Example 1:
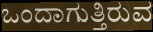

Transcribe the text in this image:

ಒಂದಾಗುತ್ತಿರುವ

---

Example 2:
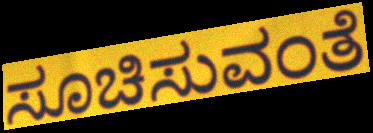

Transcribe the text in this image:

ಸೂಚಿಸುವಂತೆ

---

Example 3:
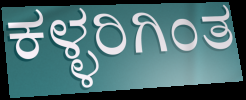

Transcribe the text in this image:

ಕಳ್ಳರಿಗಿಂತ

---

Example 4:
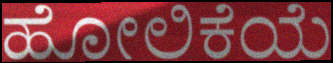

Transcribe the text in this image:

ಹೋಲಿಕೆಯೆ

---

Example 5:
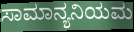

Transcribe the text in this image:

ಸಾಮಾನ್ಯನಿಯಮ